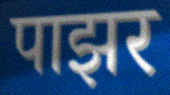
पाझर